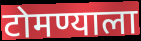
टोमण्याला